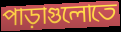
পাড়াগুলোতে